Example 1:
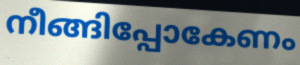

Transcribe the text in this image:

നീങ്ങിപ്പോകേണം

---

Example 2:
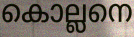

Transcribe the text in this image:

കൊല്ലനെ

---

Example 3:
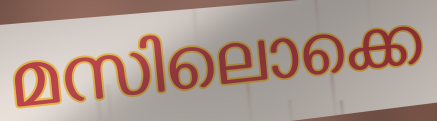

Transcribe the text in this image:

മസിലൊക്കെ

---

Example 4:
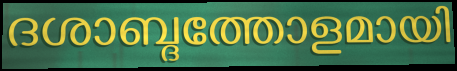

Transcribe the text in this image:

ദശാബ്ദത്തോളമായി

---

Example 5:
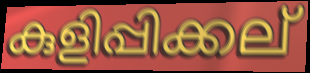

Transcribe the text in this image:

കുളിപ്പിക്കല്